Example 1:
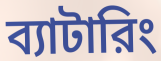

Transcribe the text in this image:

ব্যাটারিং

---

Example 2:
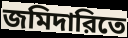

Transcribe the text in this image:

জমিদারিতে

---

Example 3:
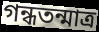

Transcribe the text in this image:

গন্ধতন্মাত্র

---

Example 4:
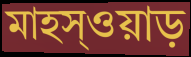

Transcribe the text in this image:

মাহস্ওয়াড়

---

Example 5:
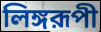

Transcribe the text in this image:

লিঙ্গরূপী